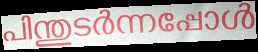
പിന്തുടർന്നപ്പോൾ